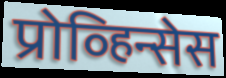
प्रोव्हिन्सेस